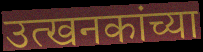
उत्खनकांच्या